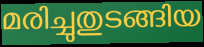
മരിച്ചുതുടങ്ങിയ